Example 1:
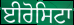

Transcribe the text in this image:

ਈਰੋਸਿਟਾ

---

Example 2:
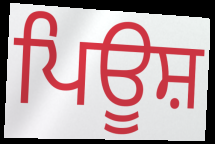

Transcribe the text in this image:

ਪਿਊਸ਼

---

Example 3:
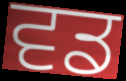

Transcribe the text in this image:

ਵਡ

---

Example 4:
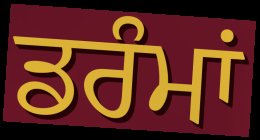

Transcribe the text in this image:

ਡਰੰਮਾਂ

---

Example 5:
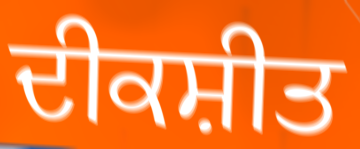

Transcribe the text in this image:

ਦੀਕਸ਼ੀਤ